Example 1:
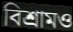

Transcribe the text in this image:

বিশ্রামও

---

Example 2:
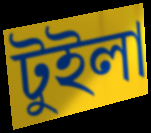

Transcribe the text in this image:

টুইলা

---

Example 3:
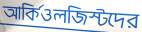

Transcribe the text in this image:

আর্কিওলজিস্টদের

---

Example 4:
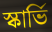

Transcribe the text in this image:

স্কার্ভি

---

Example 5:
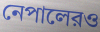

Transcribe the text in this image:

নেপালেরও